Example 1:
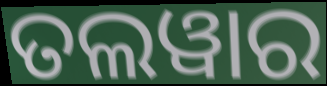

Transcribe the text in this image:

ତଲୱାର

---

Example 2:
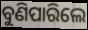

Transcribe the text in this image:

ବୁଣିପାରିଲେ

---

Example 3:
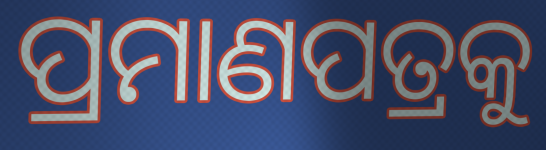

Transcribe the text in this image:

ପ୍ରମାଣପତ୍ରକୁ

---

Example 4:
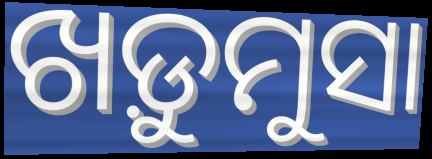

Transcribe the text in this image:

ଖଡ଼ୁମୁସା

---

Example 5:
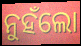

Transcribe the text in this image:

ନୁହଁଲୋ